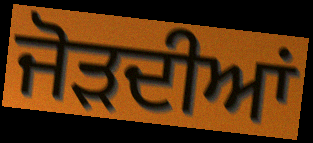
ਜੋੜਦੀਆਂ